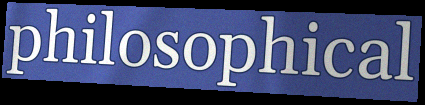
philosophical